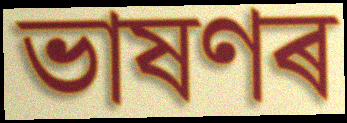
ভাষণৰ